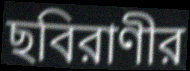
ছবিরাণীর